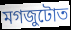
মগজুটোত